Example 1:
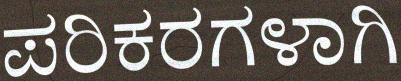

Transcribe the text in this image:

ಪರಿಕರಗಳಾಗಿ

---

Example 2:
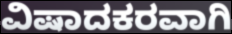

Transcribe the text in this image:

ವಿಷಾದಕರವಾಗಿ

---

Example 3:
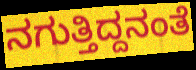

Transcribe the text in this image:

ನಗುತ್ತಿದ್ದನಂತೆ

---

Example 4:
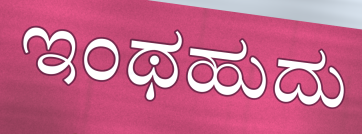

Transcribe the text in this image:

ಇಂಥಹುದು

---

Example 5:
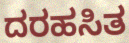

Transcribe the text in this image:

ದರಹಸಿತ